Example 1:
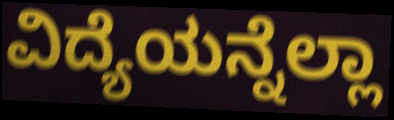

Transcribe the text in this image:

ವಿದ್ಯೆಯನ್ನೆಲ್ಲಾ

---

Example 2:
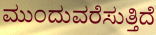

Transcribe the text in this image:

ಮುಂದುವರೆಸುತ್ತಿದೆ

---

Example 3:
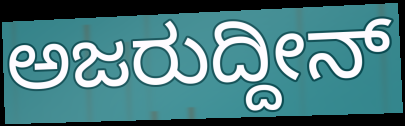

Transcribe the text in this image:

ಅಜರುದ್ದೀನ್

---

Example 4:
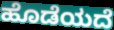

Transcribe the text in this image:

ಹೊಡೆಯದೆ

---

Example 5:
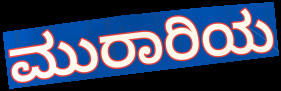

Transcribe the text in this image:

ಮುರಾರಿಯ